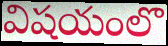
విషయంలొ